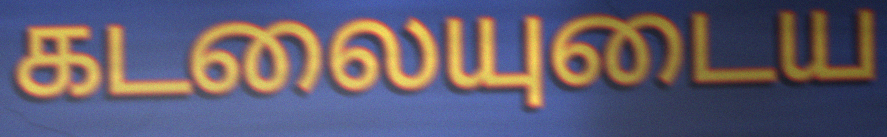
கடலையுடைய